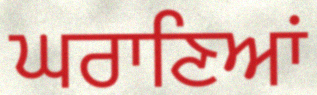
ਘਰਾਣਿਆਂ